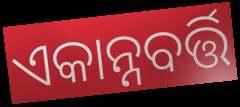
ଏକାନ୍ନବର୍ତ୍ତି